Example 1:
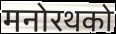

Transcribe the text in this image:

मनोरथको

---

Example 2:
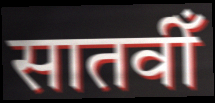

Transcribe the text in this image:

सातवीँ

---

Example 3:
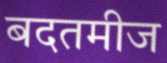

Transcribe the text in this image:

बदतमीज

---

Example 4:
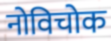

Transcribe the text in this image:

नोविचोक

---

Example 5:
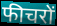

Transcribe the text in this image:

फीचरों